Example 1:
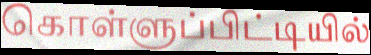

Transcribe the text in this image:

கொள்ளுப்பிட்டியில்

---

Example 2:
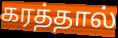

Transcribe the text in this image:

கரத்தால்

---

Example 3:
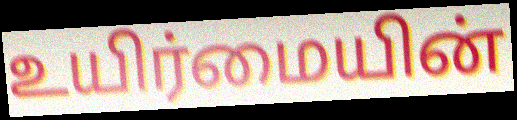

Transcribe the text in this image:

உயிர்மையின்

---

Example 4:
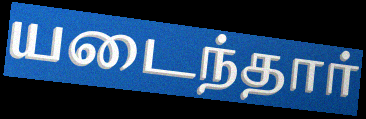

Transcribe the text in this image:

யடைந்தார்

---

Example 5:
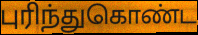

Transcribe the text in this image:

புரிந்துகொண்ட